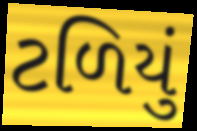
ટળિયું